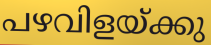
പഴവിളയ്ക്കു